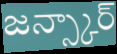
జన్స్కార్